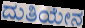
ದುತಿಯೇನ